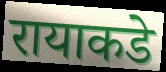
रायाकडे